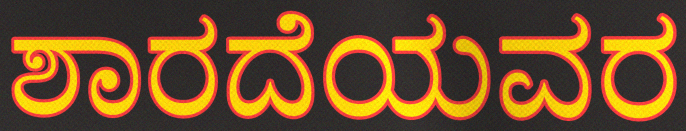
ಶಾರದೆಯವರ